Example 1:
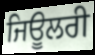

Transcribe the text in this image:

ਜਿਊਲਰੀ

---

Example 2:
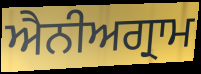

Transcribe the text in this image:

ਐਨੀਅਗ੍ਰਾਮ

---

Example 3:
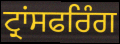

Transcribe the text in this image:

ਟ੍ਰਾਂਸਫਰਿੰਗ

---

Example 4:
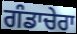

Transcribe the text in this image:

ਗੰਡਾਚੇਰਾ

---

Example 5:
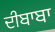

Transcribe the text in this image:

ਦੀਬਾਬਾ